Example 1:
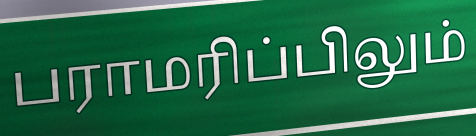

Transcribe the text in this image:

பராமரிப்பிலும்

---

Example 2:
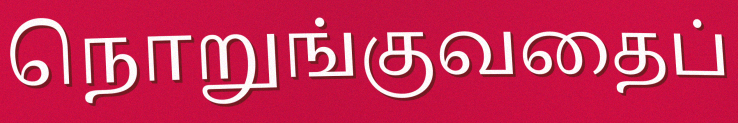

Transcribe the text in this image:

நொறுங்குவதைப்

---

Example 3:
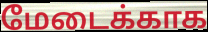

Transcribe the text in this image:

மேடைக்காக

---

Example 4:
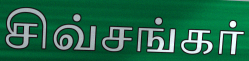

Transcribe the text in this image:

சிவ்சங்கர்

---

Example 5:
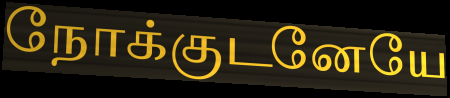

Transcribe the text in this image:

நோக்குடனேயே